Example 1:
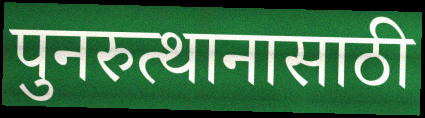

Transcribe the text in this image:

पुनरुत्थानासाठी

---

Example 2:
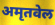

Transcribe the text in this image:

अमृतवेल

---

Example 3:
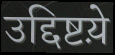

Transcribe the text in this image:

उद्दिष्टय़े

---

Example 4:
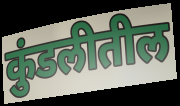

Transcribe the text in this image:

कुंडलीतील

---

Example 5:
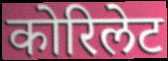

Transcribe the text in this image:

कोरिलेट